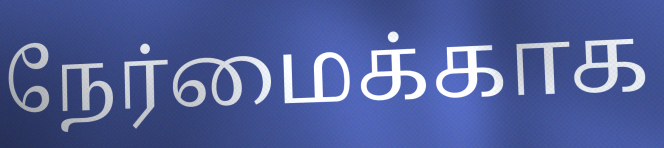
நேர்மைக்காக